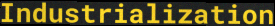
Industrialization